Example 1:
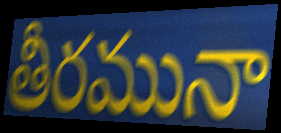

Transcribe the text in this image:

తీరమునా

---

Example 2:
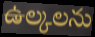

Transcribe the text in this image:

ఉల్కలను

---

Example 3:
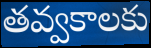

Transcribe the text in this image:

తవ్వకాలకు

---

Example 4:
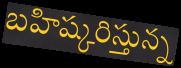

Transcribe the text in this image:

బహిష్కరిస్తున్న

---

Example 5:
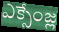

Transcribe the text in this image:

ఎక్సేంజ్ల